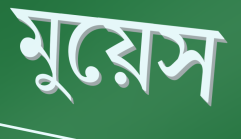
মুয়েস